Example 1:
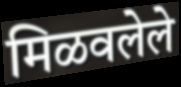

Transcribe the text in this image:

मिळवलेले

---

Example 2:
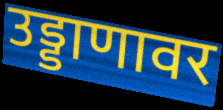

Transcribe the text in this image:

उड्डाणावर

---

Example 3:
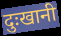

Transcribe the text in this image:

दुःखानी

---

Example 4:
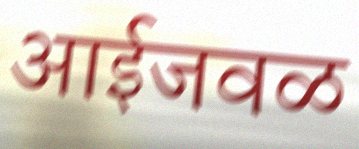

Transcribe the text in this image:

आईजवळ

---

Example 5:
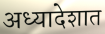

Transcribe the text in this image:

अध्यादेशात